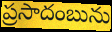
ప్రసాదంబును